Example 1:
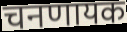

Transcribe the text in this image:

चनणायक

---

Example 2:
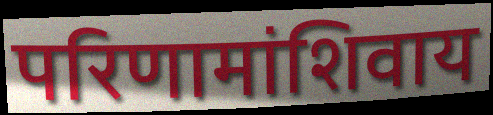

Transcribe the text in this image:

परिणामांशिवाय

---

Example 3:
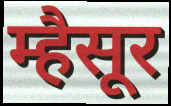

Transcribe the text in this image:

म्हैसूर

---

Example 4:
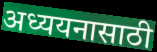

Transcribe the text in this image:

अध्ययनासाठी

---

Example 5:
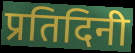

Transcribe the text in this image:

प्रतिदिनी